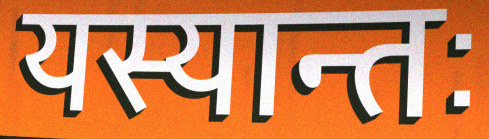
यस्यान्तः